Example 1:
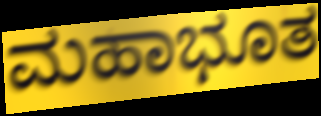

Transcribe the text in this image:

ಮಹಾಭೂತ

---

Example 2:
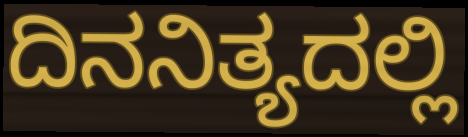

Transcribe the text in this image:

ದಿನನಿತ್ಯದಲ್ಲಿ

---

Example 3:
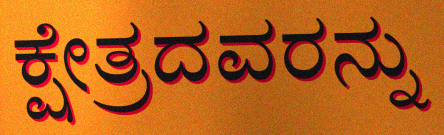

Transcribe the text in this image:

ಕ್ಷೇತ್ರದವರನ್ನು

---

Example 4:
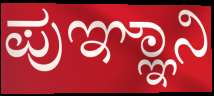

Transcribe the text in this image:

ಪುಞ್ಞಾನಿ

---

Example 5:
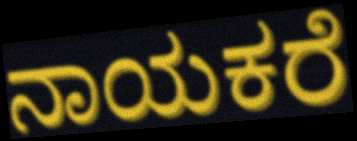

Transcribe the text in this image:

ನಾಯಕರೆ